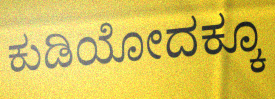
ಕುಡಿಯೋದಕ್ಕೂ